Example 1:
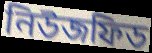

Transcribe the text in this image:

নিউজফিড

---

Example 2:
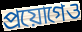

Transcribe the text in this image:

প্রয়োগেও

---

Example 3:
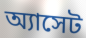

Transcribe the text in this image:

অ্যাসেট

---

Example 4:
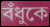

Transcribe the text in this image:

বঁধুকে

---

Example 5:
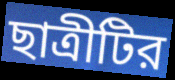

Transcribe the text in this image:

ছাত্রীটির